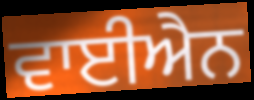
ਵਾਈਐਨ